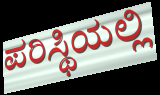
ಪರಿಸ್ಥಿಯಲ್ಲಿ